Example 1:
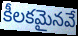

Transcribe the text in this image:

కీలకమైనవే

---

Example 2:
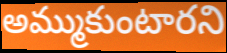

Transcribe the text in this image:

అమ్ముకుంటారని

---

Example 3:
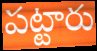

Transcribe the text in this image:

పట్టారు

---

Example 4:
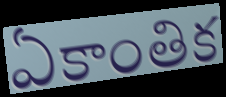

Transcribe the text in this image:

ఏకాంతిక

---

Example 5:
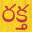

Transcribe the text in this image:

రక్త